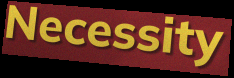
Necessity